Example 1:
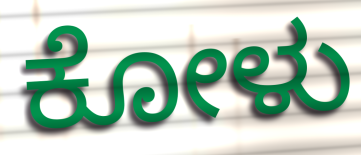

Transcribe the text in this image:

ಕೋಳು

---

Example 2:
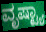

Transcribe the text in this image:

ವೃಷ್ಟ್ಯಾ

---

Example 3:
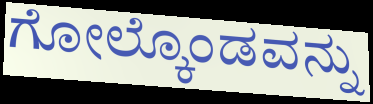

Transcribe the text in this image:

ಗೋಲ್ಕೊಂಡವನ್ನು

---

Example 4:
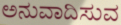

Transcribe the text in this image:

ಅನುವಾದಿಸುವ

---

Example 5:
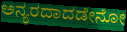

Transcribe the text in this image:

ಅನ್ಯರದಾದಡೇನೋ